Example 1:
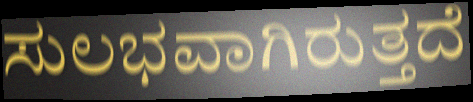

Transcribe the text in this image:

ಸುಲಭವಾಗಿರುತ್ತದೆ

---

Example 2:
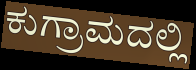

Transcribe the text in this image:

ಕುಗ್ರಾಮದಲ್ಲಿ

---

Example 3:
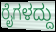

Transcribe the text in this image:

ರೈಗಳದ್ದು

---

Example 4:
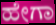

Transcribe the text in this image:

ಹೇಗಾ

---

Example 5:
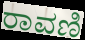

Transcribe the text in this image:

ರಾವಣಿ